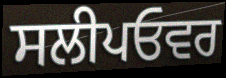
ਸਲੀਪਓਵਰ